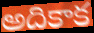
అదికాక